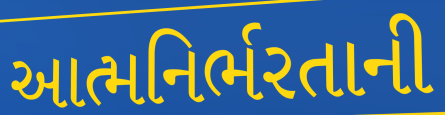
આત્મનિર્ભરતાની